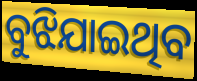
ବୁଝିଯାଇଥିବ